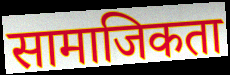
सामाजिकता